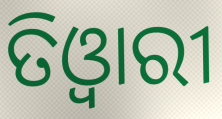
ତିଓ୍ଵାରୀ